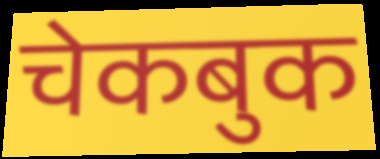
चेकबुक